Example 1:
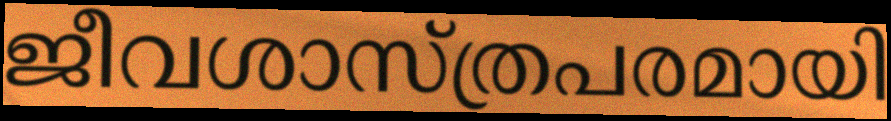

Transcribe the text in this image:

ജീവശാസ്ത്രപരമായി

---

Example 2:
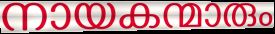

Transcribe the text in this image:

നായകന്മാരും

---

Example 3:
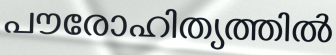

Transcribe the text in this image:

പൗരോഹിത്യത്തിൽ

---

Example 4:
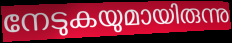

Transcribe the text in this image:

നേടുകയുമായിരുന്നു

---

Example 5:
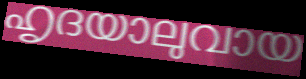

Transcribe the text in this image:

ഹൃദയാലുവായ